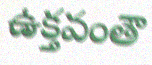
ఉక్తవంతౌ